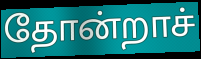
தோன்றாச்